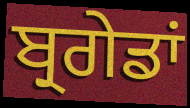
ਬ੍ਰਗੇਡਾਂ